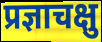
प्रज्ञाचक्षु